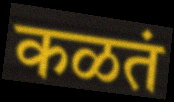
कळतं